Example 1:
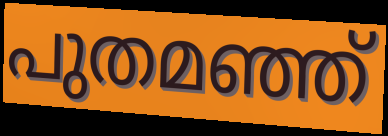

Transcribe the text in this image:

പുതമഞ്ഞ്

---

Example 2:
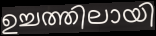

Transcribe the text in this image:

ഉച്ചത്തിലായി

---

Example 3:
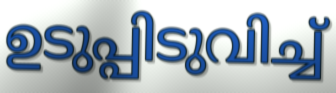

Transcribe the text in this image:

ഉടുപ്പിടുവിച്ച്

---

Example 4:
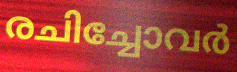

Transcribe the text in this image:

രചിച്ചോവർ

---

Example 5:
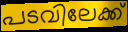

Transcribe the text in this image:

പടവിലേക്ക്